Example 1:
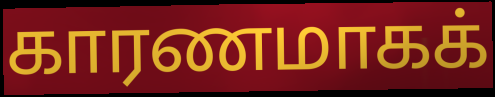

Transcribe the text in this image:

காரணமாகக்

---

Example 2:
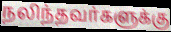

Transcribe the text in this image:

நலிந்தவர்களுக்கு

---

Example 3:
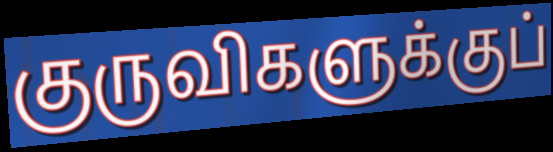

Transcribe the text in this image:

குருவிகளுக்குப்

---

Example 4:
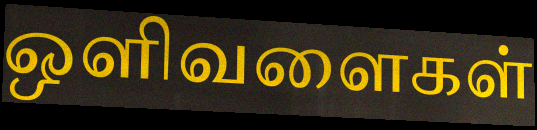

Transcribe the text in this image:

ஒளிவளைகள்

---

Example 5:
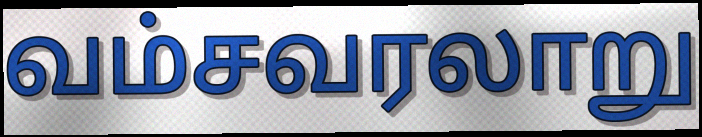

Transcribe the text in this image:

வம்சவரலாறு